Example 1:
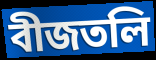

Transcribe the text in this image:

বীজতলি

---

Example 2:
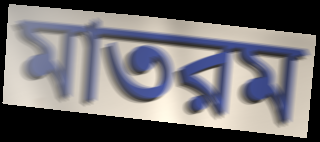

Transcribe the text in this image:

মাতরম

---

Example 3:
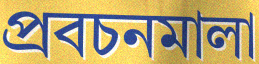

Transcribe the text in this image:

প্রবচনমালা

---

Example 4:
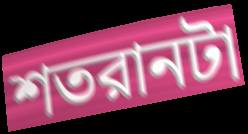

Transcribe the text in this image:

শতরানটা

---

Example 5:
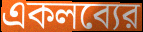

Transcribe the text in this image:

একলব্যের